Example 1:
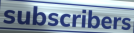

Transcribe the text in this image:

subscribers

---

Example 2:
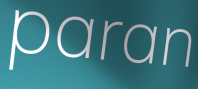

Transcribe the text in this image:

paran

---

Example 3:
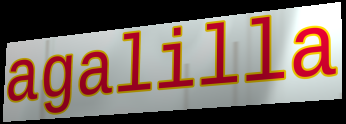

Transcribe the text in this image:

agalilla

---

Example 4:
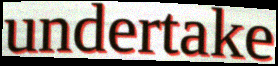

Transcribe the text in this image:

undertake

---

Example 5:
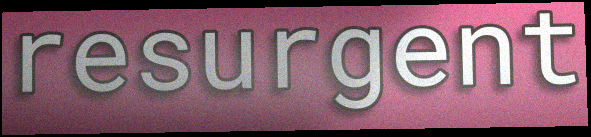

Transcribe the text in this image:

resurgent